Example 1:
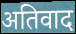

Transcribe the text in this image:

अतिवाद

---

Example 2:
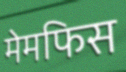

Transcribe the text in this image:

मेमफिस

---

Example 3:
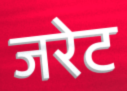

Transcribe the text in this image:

जरेट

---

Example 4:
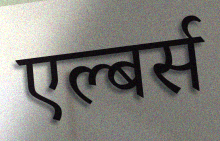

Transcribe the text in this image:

एल्बर्स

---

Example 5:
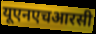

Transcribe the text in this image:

यूएनएचआरसी